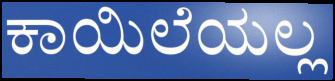
ಕಾಯಿಲೆಯಲ್ಲ